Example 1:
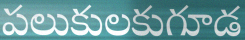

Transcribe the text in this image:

పలుకులకుగూడ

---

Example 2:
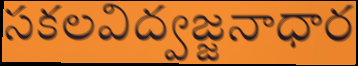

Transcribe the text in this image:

సకలవిద్వజ్జనాధార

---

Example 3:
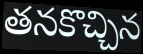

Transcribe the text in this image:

తనకొచ్చిన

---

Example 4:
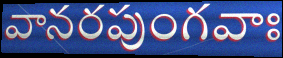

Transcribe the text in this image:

వానరపుంగవాః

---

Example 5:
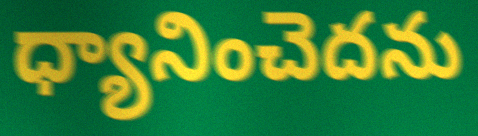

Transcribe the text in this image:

ధ్యానించెదను